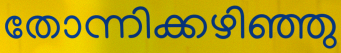
തോന്നിക്കഴിഞ്ഞു